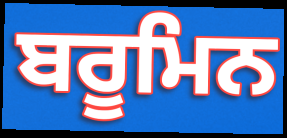
ਬਰੂਮਿਨ